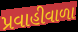
પ્રવાહીવાળા